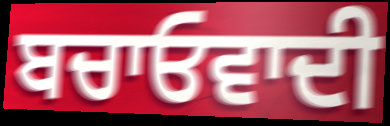
ਬਚਾਓਵਾਦੀ